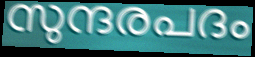
സുന്ദരപദം